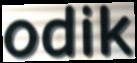
odik